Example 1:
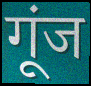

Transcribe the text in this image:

गूंज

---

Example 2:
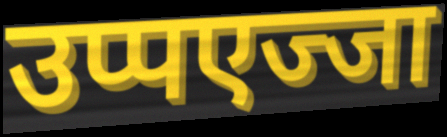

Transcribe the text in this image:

उप्पएज्जा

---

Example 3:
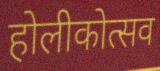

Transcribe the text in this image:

होलीकोत्सव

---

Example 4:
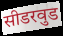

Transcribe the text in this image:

सीडरवुड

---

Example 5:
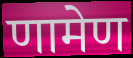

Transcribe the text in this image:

णामेण